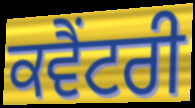
ਕਵੈਂਟਰੀ